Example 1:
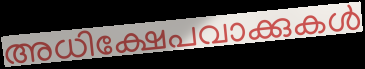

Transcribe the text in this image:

അധിക്ഷേപവാക്കുകൾ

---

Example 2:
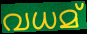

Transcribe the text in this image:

വധമ്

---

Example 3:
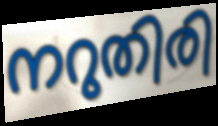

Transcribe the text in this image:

നറുതിരി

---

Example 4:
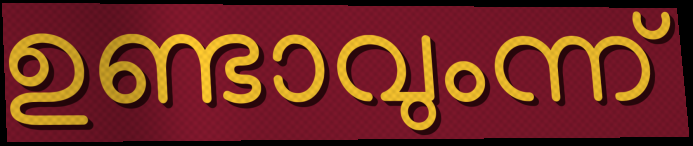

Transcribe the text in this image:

ഉണ്ടാവുംന്ന്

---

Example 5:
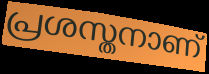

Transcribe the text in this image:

പ്രശസ്തനാണ്